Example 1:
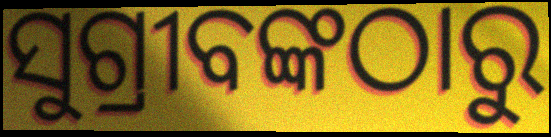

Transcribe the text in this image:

ସୁଗ୍ରୀବଙ୍କଠାରୁ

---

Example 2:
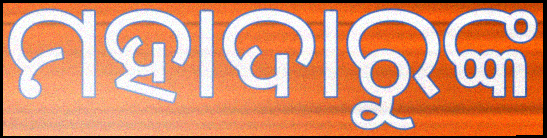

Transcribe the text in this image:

ମହାଦାରୁଙ୍କ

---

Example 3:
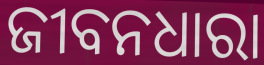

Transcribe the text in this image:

ଜୀବନଧାରା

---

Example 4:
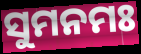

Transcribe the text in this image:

ସୁମନମଃ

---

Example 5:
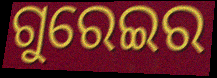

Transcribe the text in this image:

ଗୁରେଇର